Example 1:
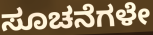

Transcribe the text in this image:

ಸೂಚನೆಗಳೇ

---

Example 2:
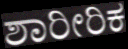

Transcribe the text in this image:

ಶಾರೀರಿಕ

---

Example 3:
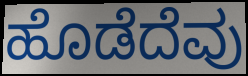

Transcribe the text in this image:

ಹೊಡೆದೆವು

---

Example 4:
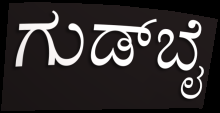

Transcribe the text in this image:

ಗುಡ್‌ಬೈ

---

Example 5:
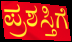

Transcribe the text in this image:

ಪ್ರಶಸ್ತಿಗೆ